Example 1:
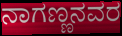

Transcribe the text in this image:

ನಾಗಣ್ಣನವರ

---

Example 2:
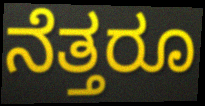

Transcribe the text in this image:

ನೆತ್ತರೂ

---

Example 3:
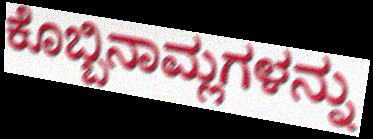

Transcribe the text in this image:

ಕೊಬ್ಬಿನಾಮ್ಲಗಳನ್ನು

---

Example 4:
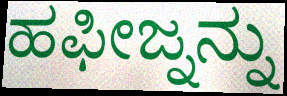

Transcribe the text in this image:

ಹಫೀಜ್ನನ್ನು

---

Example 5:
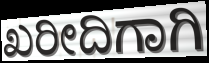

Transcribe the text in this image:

ಖರೀದಿಗಾಗಿ